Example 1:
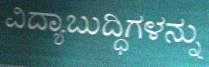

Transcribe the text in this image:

ವಿದ್ಯಾಬುದ್ಧಿಗಳನ್ನು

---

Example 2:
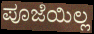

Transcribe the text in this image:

ಪೂಜೆಯಿಲ್ಲ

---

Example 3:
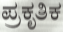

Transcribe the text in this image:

ಪ್ರಕೃತಿಕ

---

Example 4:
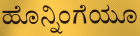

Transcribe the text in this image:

ಹೊನ್ನಿಂಗೆಯೂ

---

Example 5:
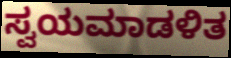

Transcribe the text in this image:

ಸ್ವಯಮಾಡಳಿತ